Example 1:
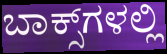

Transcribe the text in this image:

ಬಾಕ್ಸ್‌ಗಳಲ್ಲಿ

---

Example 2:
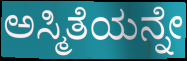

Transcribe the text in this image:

ಅಸ್ಮಿತೆಯನ್ನೇ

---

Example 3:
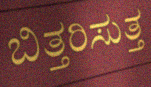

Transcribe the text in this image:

ಬಿತ್ತರಿಸುತ್ತ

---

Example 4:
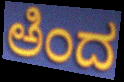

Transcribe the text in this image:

ಅಿಂದ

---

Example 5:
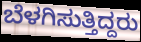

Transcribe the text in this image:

ಬೆಳಗಿಸುತ್ತಿದ್ದರು